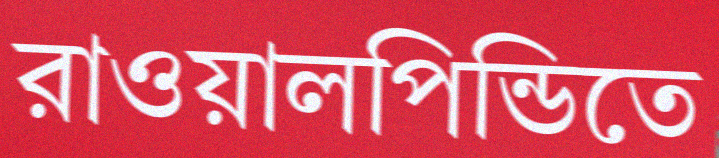
রাওয়ালপিন্ডিতে